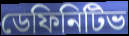
ডেফিনিটিভ